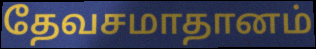
தேவசமாதானம்